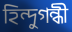
হিন্দুগন্ধী